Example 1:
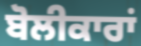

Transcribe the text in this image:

ਬੋਲੀਕਾਰਾਂ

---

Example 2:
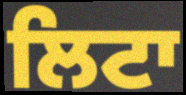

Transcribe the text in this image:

ਲਿਟਾ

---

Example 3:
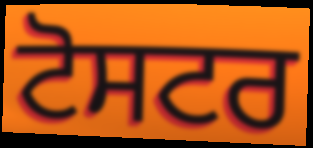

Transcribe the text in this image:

ਟੋਸਟਰ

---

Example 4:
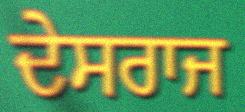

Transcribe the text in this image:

ਦੇਸਰਾਜ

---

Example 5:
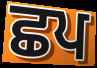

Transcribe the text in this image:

ਛਪ